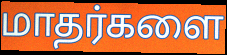
மாதர்களை